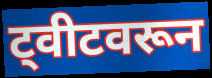
ट्वीटवरून